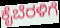
ಕೈಬೆರಳಿಗೆ